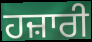
ਹਜ਼ਾਰੀ